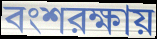
বংশরক্ষায়